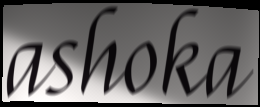
ashoka